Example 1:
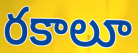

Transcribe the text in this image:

రకాలూ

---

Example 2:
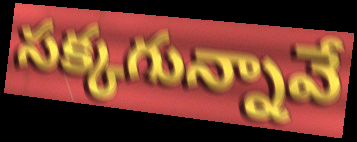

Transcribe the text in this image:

సక్కగున్నావే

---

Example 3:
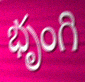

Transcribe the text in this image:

భృంగి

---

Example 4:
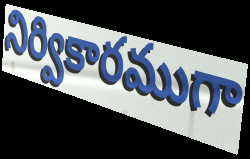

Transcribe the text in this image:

నిర్వికారముగా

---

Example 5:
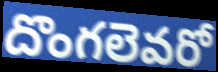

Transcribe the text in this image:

దొంగలెవరో